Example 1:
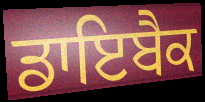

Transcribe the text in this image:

ਡਾਇਬੈਕ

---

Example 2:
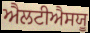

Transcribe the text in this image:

ਐਲਟੀਐਸਯੂ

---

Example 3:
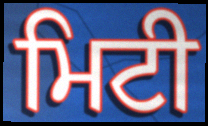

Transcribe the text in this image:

ਮਿਟੀ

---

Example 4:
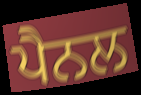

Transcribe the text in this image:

ਪੈਨਲ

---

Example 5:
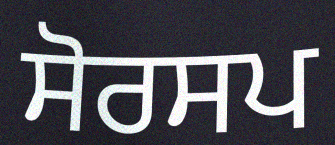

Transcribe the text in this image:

ਸੋਰਸਪ